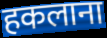
हकलाना